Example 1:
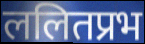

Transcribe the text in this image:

ललितप्रभ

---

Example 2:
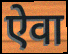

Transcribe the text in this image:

ऐवा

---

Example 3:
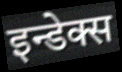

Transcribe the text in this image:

इन्डेक्स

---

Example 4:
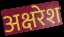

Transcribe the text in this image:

अक्षरेश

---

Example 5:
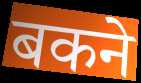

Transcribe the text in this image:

बकने